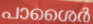
പാശൈർ